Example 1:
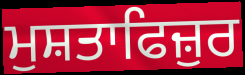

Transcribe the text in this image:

ਮੁਸ਼ਤਾਫਿਜ਼ੁਰ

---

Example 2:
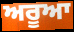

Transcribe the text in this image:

ਅਰੂਆ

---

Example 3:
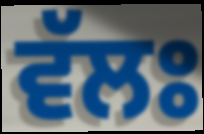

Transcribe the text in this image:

ਵੱਲਃ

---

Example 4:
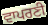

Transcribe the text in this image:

ਵਾਪਰਣੀ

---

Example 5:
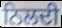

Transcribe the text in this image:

ਨਿਲਦੀ